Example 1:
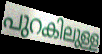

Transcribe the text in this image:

പുറകിലുള്ള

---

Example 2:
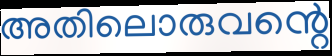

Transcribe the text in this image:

അതിലൊരുവന്റെ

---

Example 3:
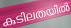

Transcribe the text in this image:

കുടിലതയിൽ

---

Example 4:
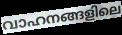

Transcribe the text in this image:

വാഹനങ്ങളിലെ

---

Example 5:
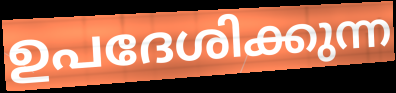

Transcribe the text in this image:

ഉപദേശിക്കുന്ന